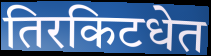
तिरकिटधेत